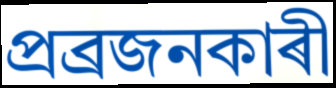
প্ৰব্ৰজনকাৰী